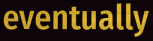
eventually